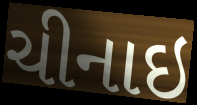
ચીનાઇ